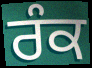
ਰੰਕ